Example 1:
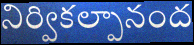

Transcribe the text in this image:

నిర్వికల్పానంద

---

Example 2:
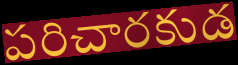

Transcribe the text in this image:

పరిచారకుడ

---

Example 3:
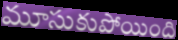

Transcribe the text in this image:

మూసుకుపోయింది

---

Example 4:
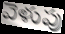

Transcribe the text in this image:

వెళుపు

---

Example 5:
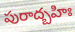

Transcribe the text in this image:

పురాద్బహిః